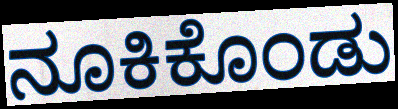
ನೂಕಿಕೊಂಡು